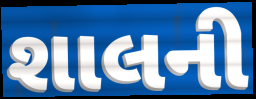
શાલની